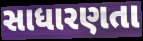
સાધારણતા